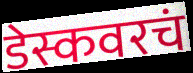
डेस्कवरचं